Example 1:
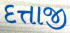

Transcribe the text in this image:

દત્તાજી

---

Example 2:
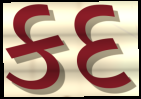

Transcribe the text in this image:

કદ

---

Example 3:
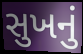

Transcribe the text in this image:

સુખનું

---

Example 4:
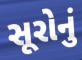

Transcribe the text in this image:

સૂરોનું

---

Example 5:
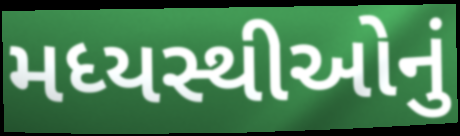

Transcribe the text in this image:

મધ્યસ્થીઓનું